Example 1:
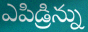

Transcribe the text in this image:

ఎపిడ్రిన్ను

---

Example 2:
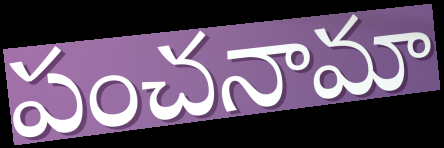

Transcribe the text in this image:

పంచనామా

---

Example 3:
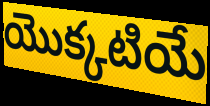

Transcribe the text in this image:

యొక్కటియే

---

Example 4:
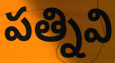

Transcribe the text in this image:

పత్నివి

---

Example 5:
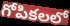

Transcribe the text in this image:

గోపికలలో